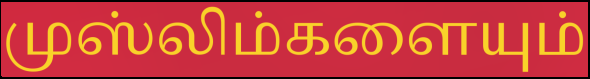
முஸ்லிம்களையும்